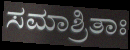
ಸಮಾಶ್ರಿತಾಃ